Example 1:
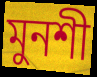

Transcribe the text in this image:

মুনশী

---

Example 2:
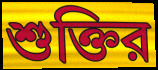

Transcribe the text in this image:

শুক্তির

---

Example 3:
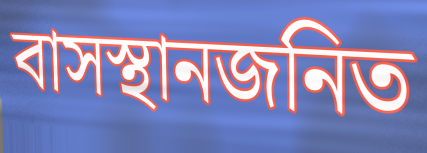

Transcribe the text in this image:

বাসস্থানজনিত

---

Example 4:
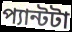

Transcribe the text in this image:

প্যান্টটা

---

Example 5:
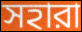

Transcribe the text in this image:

সহারা